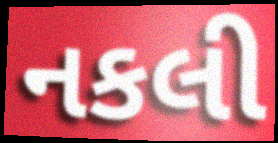
નકલી